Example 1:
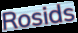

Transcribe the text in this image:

Rosids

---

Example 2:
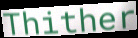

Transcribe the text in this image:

Thither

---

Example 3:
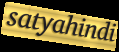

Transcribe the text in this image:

satyahindi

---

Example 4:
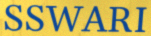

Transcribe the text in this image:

SSWARI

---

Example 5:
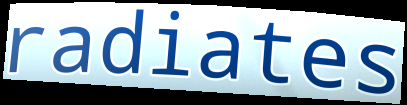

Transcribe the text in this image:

radiates